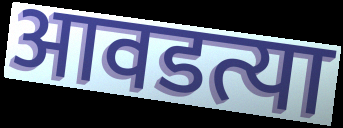
आवडत्या